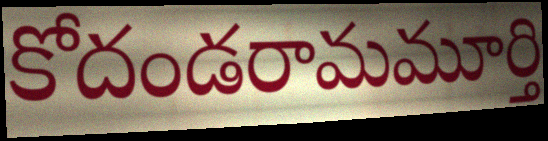
కోదండరామమూర్తి